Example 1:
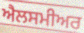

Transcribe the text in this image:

ਐਲਸਮੀਅਰ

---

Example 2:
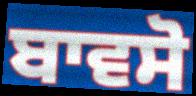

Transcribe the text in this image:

ਬਾਵਸੋ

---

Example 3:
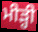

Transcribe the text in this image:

ਮੀੜ੍ਹੀ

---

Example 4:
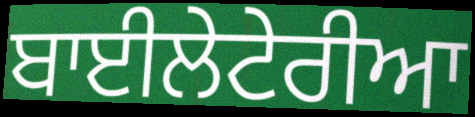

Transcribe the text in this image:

ਬਾਈਲੇਟੇਰੀਆ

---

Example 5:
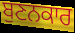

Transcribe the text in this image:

ਬੁਣਨਕਾਰ